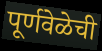
पूर्णवेळेची